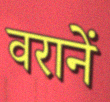
वरानें